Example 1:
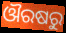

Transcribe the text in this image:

ଔରଷରୁ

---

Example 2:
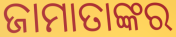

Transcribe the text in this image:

ଜାମାତାଙ୍କର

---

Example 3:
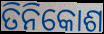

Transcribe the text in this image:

ତିନିକୋଶ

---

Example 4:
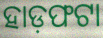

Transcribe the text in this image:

ହାଡ଼ଫଟା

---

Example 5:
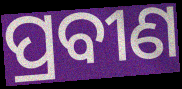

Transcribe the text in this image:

ପ୍ରବୀଣ